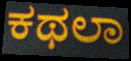
ಕಥಲಾ